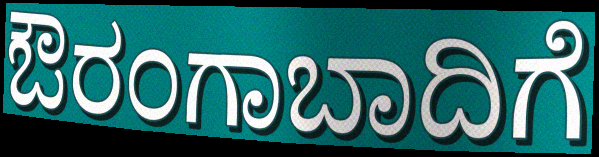
ಔರಂಗಾಬಾದಿಗೆ